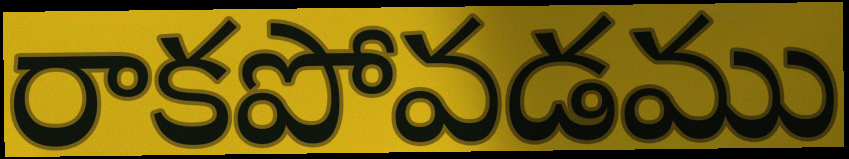
రాకపోవడము